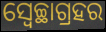
ସ୍ବେଚ୍ଛାଗ୍ରହର